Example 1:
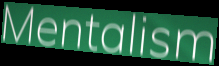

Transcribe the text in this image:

Mentalism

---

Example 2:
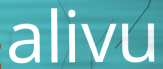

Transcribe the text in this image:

alivu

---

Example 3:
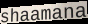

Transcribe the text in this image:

shaamana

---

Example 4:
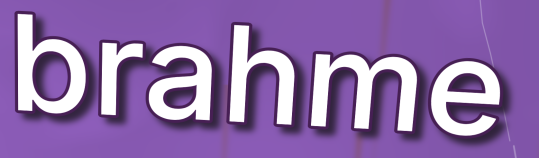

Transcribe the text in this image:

brahme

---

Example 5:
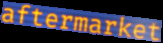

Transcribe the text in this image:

aftermarket